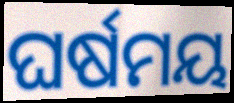
ଘର୍ଷମୟ